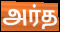
அர்த